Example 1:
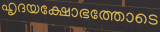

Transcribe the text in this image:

ഹൃദയക്ഷോഭത്തോടെ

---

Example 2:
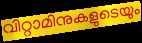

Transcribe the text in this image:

വിറ്റാമിനുകളുടെയും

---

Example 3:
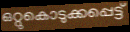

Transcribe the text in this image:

ഒറ്റുകൊടുക്കപ്പെട്ട്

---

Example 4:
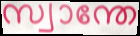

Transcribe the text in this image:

സ്വാന്തേ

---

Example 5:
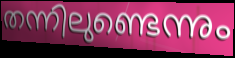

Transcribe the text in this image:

തന്നിലുണ്ടെന്നും